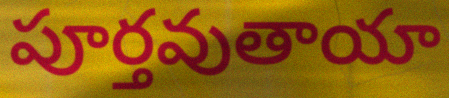
పూర్తవుతాయా